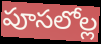
పూసలోల్ల